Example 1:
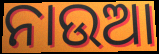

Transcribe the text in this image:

ନାଉଆ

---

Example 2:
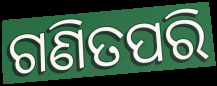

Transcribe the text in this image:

ଗଣିତପରି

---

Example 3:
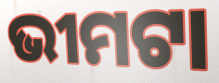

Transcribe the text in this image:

ଭୀମଟା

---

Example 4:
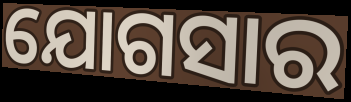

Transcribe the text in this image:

ଯୋଗସାର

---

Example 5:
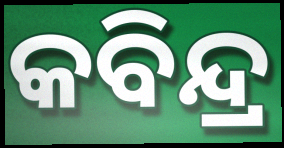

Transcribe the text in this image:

କବିନ୍ଦ୍ର